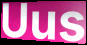
Uus